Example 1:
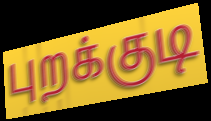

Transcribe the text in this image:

புறக்குடி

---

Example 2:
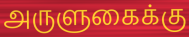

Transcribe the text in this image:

அருளுகைக்கு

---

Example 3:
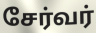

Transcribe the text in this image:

சேர்வர்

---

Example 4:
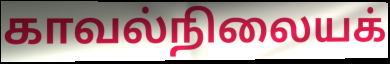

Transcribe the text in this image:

காவல்நிலையக்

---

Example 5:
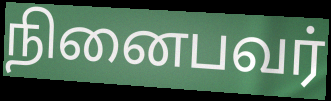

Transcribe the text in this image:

நினைபவர்